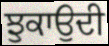
ਝੁਕਾਉਦੀ